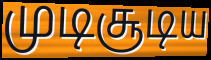
முடிசூடிய